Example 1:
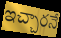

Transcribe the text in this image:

ఇచ్చారనే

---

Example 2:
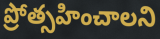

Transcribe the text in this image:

ప్రోత్సహించాలని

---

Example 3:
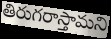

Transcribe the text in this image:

తిరుగరాస్తామని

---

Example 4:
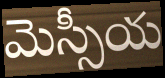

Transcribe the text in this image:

మెస్సీయ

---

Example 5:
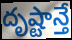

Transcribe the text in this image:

దృష్టాన్తే